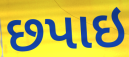
છપાઇ